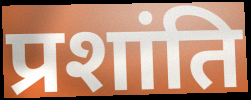
प्रशांति